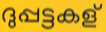
ദുപ്പട്ടകള്